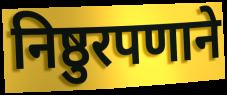
निष्ठुरपणाने